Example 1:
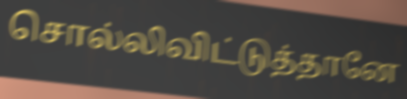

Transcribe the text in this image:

சொல்லிவிட்டுத்தானே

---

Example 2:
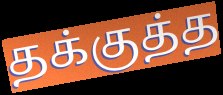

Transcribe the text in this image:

தக்குத்த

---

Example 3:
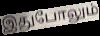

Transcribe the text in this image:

இதுபோலும்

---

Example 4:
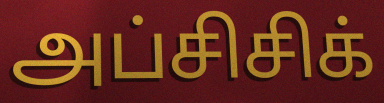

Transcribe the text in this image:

அப்சிசிக்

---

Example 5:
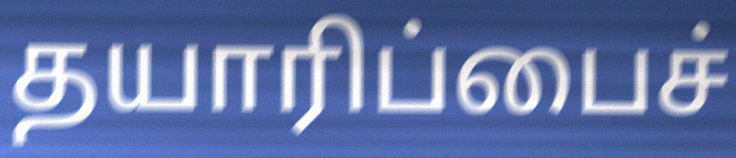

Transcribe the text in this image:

தயாரிப்பைச்